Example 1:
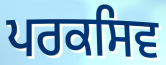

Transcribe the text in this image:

ਪਰਕਸਿਵ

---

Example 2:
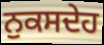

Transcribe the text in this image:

ਨੁਕਸਦੇਹ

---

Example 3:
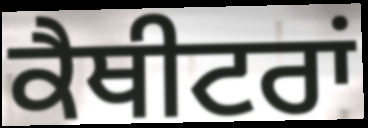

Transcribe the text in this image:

ਕੈਥੀਟਰਾਂ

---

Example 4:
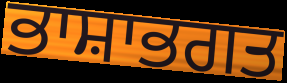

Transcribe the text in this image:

ਭਾਸ਼ਾਭਗਤ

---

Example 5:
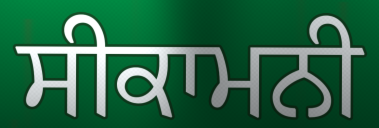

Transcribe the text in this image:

ਸੀਕਾਮਨੀ